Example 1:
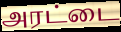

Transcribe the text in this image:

அரட்டை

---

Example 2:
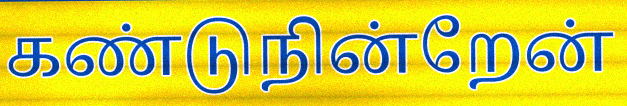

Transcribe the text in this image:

கண்டுநின்றேன்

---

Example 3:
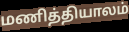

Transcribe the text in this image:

மணித்தியாலம்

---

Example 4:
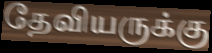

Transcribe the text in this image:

தேவியருக்கு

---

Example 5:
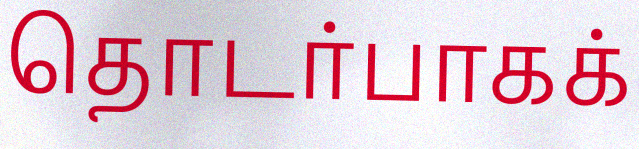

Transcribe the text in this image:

தொடர்பாகக்